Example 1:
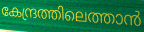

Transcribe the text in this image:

കേന്ദ്രത്തിലെത്താൻ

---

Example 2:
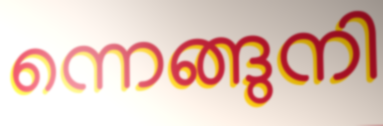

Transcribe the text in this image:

ന്നെങ്ങുനി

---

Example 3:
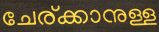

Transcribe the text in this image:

ചേര്ക്കാനുള്ള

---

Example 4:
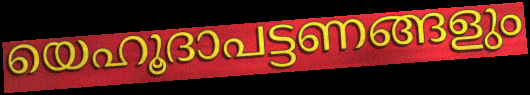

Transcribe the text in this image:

യെഹൂദാപട്ടണങ്ങളും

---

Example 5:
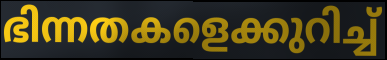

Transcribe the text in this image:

ഭിന്നതകളെക്കുറിച്ച്